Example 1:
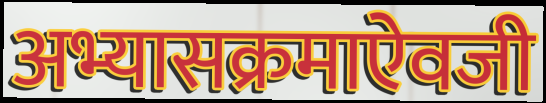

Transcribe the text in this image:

अभ्यासक्रमाऐवजी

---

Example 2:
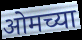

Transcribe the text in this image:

ओमच्या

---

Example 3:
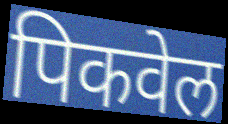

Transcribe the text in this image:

पिकवेल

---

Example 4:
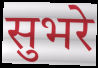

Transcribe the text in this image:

सुभरे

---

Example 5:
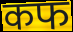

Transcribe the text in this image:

कफ